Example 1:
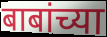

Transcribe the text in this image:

बाबांच्या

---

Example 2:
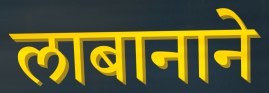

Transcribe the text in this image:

लाबानाने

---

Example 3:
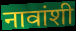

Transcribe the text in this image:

नावांशी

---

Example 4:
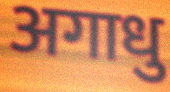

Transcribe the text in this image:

अगाधु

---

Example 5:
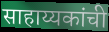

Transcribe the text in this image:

साहाय्यकांची